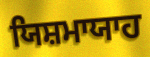
ਯਿਸ਼ਮਾਯਾਹ